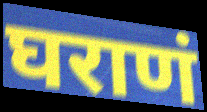
घराणं